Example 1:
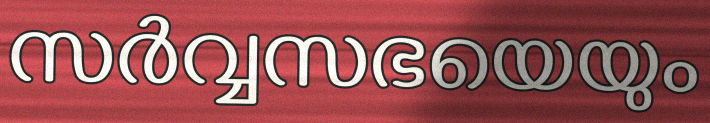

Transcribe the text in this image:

സർവ്വസഭയെയും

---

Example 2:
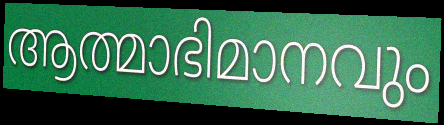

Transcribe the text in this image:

ആത്മാഭിമാനവും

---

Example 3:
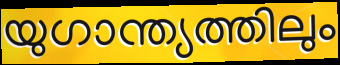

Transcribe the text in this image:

യുഗാന്ത്യത്തിലും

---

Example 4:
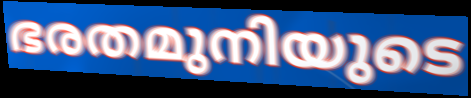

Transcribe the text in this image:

ഭരതമുനിയുടെ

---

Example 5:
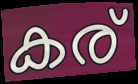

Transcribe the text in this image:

കര്